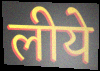
लीये